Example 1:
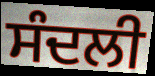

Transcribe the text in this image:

ਸੰਦਲੀ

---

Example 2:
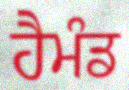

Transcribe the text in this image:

ਹੈਮੰਡ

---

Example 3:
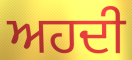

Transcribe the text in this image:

ਅਹਦੀ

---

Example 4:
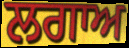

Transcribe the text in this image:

ਲਗਾਅ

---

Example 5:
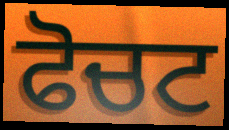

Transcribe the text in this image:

ਫੋਚਟ